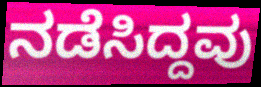
ನಡೆಸಿದ್ದವು